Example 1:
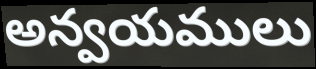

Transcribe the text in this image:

అన్వయములు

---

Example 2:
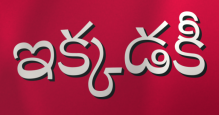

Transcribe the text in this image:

ఇక్కడకీ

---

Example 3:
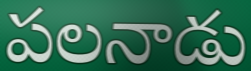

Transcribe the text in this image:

పలనాడు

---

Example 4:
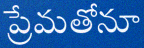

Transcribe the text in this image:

ప్రేమతోనూ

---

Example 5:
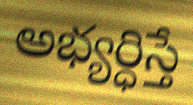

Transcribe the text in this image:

అభ్యర్ధిస్తే